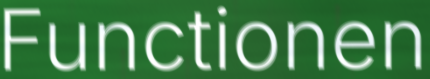
Functionen